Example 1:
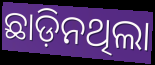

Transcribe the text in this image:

ଛାଡ଼ିନଥିଲା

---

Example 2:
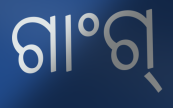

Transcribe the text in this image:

ଗାଂଗ୍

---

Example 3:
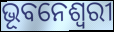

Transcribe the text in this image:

ଭୂବନେଶ୍ୱରୀ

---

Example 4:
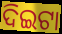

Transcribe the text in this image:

ଦିଇଟା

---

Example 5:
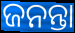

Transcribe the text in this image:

ଜନନ୍ତା